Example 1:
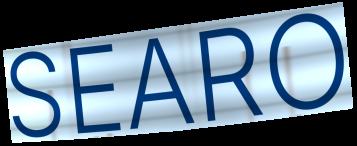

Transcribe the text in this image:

SEARO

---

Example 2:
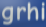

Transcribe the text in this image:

grhi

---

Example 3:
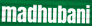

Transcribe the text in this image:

madhubani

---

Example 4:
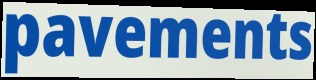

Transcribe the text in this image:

pavements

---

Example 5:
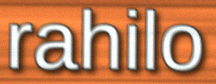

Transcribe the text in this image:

rahilo